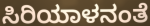
ಸಿರಿಯಾಳನಂತೆ